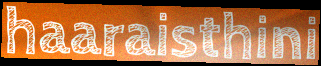
haaraisthini